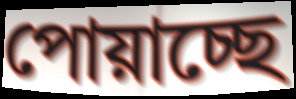
পোয়াচ্ছে